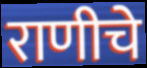
राणीचे